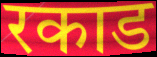
रकाड